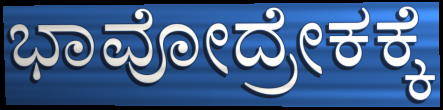
ಭಾವೋದ್ರೇಕಕ್ಕೆ